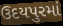
ઉદયપુરમાં